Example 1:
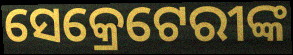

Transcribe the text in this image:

ସେକ୍ରେଟେରୀଙ୍କ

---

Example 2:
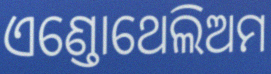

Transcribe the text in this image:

ଏଣ୍ଡୋଥେଲିଅମ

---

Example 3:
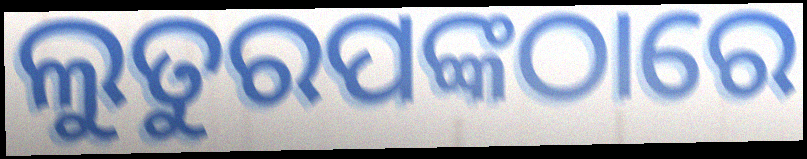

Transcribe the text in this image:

ଲୁତୁରପଙ୍କଠାରେ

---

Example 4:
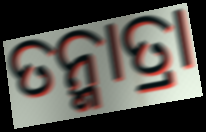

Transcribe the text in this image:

ତନ୍ମାତ୍ରା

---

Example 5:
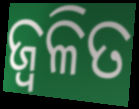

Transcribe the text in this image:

ଜ୍ୱଳିତ